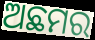
ଅଛମର